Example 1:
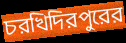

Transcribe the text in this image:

চরখিদিরপুরের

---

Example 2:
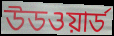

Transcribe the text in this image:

উডওয়ার্ড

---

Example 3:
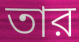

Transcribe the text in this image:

তার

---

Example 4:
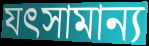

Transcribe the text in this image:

যৎসামান্য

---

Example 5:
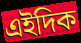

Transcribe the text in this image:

এইদিক